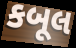
કબૂલ